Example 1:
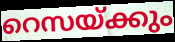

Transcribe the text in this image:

റെസയ്ക്കും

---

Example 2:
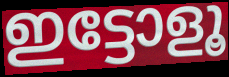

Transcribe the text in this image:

ഇട്ടോളൂ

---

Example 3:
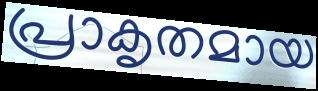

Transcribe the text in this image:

പ്രാകൃതമായ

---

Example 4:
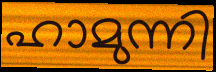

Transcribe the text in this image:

ഹാമുന്നി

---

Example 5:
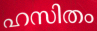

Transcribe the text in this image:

ഹസിതം